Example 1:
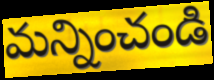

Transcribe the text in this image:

మన్నించండి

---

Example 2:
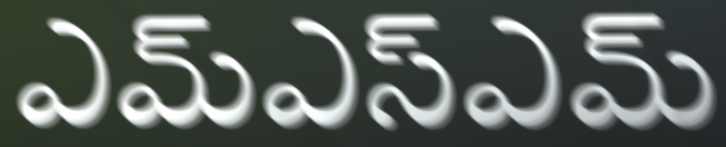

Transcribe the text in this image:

ఎమ్ఎస్ఎమ్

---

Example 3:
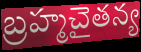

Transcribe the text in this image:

బ్రహ్మచైతన్య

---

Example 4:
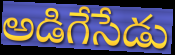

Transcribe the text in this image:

అడిగేసేడు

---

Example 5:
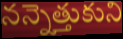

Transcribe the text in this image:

నన్నెత్తుకుని